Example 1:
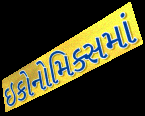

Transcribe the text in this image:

ઇકોનોમિક્સમાં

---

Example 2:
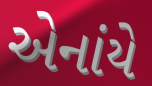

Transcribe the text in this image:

એનાંયે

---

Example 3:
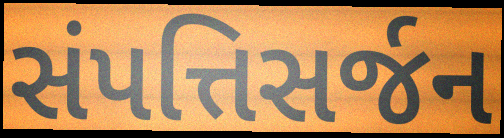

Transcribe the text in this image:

સંપત્તિસર્જન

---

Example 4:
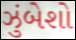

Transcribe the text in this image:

ઝુંબેશો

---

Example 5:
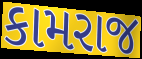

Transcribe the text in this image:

કામરાજ